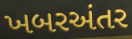
ખબરઅંતર